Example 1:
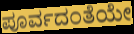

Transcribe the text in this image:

ಪೂರ್ವದಂತೆಯೇ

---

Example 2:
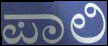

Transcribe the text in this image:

ಪಾಲಿ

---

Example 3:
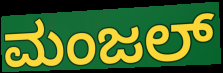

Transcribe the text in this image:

ಮಂಜಲ್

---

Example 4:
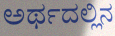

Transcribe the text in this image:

ಅರ್ಥದಲ್ಲಿನ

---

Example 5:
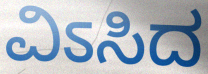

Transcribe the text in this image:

ವಿಽಸಿದ